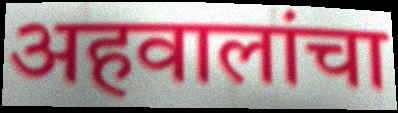
अहवालांचा